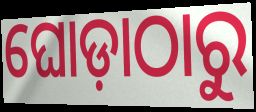
ଘୋଡ଼ାଠାରୁ